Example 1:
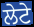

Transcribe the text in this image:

ਲੇਟੇ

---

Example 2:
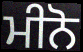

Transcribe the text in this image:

ਮੀਨੋ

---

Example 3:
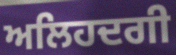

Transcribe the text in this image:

ਅਲਿਹਦਗੀ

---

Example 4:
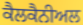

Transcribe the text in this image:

ਕੈਲਕੈਨੀਅਲ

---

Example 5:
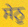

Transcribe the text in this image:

ਸੇਨੂ